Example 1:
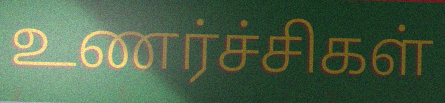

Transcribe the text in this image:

உணர்ச்சிகள்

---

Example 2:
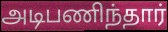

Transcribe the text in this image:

அடிபணிந்தார்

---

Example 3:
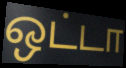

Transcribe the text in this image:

ஒட்டா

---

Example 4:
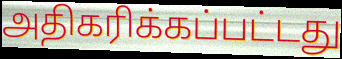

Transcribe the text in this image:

அதிகரிக்கப்பட்டது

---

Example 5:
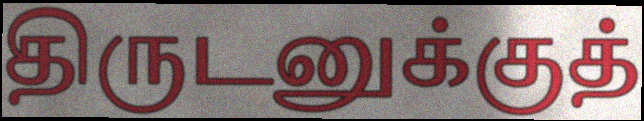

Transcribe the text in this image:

திருடனுக்குத்